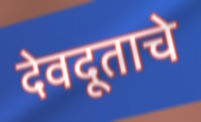
देवदूताचे